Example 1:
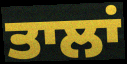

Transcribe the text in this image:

ਤਾਲਾਂ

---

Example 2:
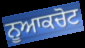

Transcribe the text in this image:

ਨੂਆਕਚੋਟ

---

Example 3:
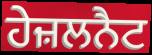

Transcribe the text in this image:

ਹੇਜ਼ਲਨੈਟ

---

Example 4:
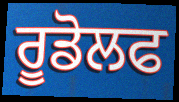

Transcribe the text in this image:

ਰੂਡੋਲਫ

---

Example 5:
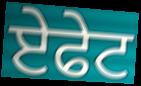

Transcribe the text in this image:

ਏਫੇਟ